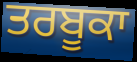
ਤਰਬੂਕਾ